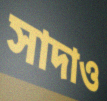
সাদাও